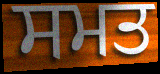
ਸਮਤ